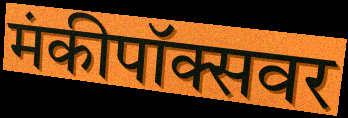
मंकीपॉक्सवर